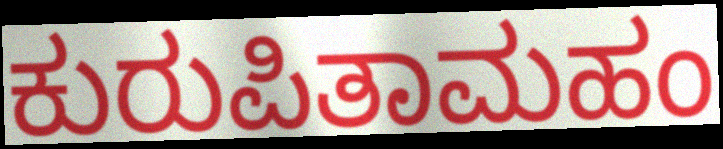
ಕುರುಪಿತಾಮಹಂ